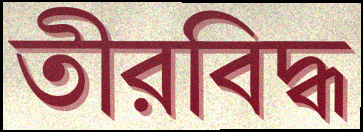
তীরবিদ্ধ